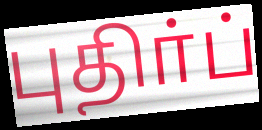
புதிர்ப்